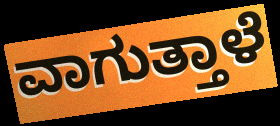
ವಾಗುತ್ತಾಳೆ